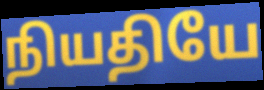
நியதியே